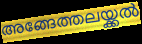
അങ്ങേത്തലയ്ക്കൽ